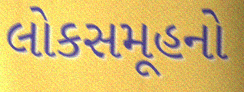
લોકસમૂહનો